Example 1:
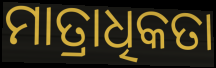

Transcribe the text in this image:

ମାତ୍ରାଧିକତା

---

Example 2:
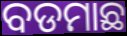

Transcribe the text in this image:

ବଡମାଛ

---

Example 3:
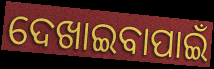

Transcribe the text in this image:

ଦେଖାଇବାପାଇଁ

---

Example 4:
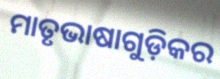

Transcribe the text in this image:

ମାତୃଭାଷାଗୁଡ଼ିକର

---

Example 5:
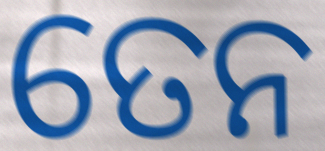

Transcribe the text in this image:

ତେନ